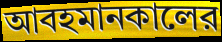
আবহমানকালের